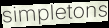
simpletons